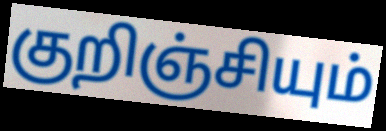
குறிஞ்சியும்